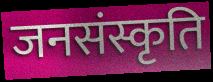
जनसंस्कृति